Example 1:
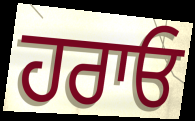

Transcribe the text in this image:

ਹਰਾਓ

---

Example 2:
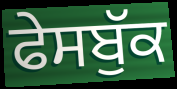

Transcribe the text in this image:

ਫੇਸਬੁੱਕ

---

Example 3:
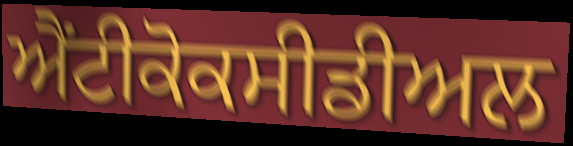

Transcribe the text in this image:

ਐਂਟੀਕੋਕਸੀਡੀਅਲ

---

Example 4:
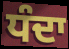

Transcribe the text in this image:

ਧੰਦਾ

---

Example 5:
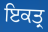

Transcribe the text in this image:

ਇਕਤ੍ਰ